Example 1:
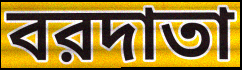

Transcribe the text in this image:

বরদাতা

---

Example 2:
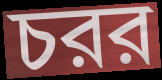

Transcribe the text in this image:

চরর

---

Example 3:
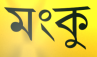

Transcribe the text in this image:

মংকু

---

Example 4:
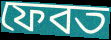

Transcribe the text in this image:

ফেবত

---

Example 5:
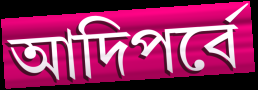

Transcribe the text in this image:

আদিপর্বে